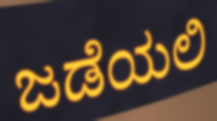
ಜಡೆಯಲಿ